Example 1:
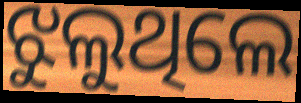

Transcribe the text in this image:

ଝୁଲୁଥିଲେ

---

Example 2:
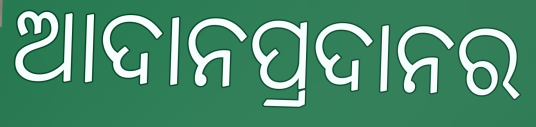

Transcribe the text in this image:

ଆଦାନପ୍ରଦାନର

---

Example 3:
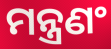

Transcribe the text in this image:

ମନ୍ତ୍ରଣଂ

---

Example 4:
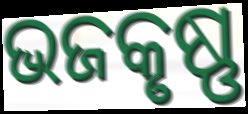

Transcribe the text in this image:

ଭଜକୃଷ୍ଣ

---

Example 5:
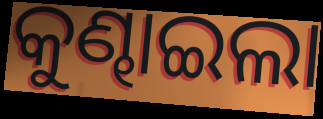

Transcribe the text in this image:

କୁଣ୍ଢାଇଲା